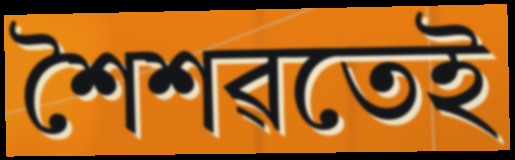
শৈশৱতেই